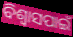
ବିଶ୍ୱାସପାଇଁ